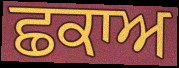
ਛਕਾਅ